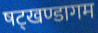
षट्खण्डागम